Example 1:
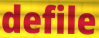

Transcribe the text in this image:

defile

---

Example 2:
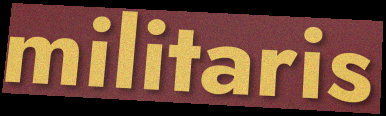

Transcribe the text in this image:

militaris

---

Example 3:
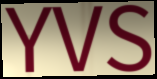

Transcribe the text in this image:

YVS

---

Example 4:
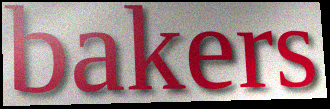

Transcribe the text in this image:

bakers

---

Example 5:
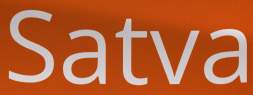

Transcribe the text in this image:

Satva